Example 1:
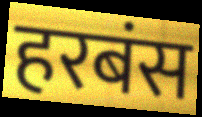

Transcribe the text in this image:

हरबंस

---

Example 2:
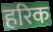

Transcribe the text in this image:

हरिक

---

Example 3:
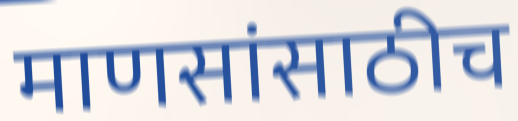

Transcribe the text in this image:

माणसांसाठीच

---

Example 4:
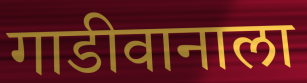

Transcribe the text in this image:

गाडीवानाला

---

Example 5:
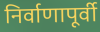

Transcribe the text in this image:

निर्वाणापूर्वी